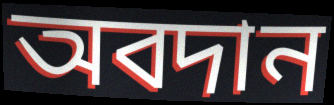
অবদান